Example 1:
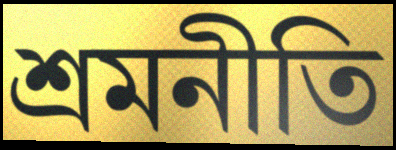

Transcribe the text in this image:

শ্রমনীতি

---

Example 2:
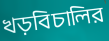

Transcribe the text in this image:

খড়বিচালির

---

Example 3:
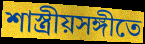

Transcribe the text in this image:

শাস্ত্রীয়সঙ্গীতে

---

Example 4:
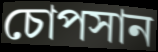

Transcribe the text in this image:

চোপসান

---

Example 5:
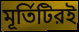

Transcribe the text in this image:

মূর্তিটিরই